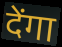
देंगा